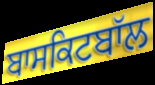
ਬਾਸਕਿਟਬਾੱਲ